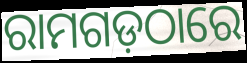
ରାମଗଡ଼ଠାରେ